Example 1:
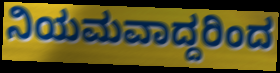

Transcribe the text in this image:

ನಿಯಮವಾದ್ದರಿಂದ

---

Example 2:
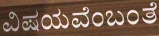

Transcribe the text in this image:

ವಿಷಯವೆಂಬಂತೆ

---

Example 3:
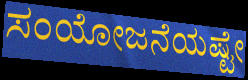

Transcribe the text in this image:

ಸಂಯೋಜನೆಯಷ್ಟೇ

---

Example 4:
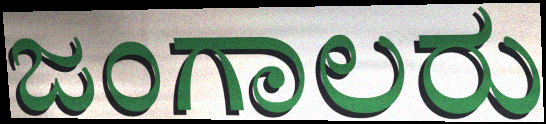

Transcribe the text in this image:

ಜಂಗಾಲರು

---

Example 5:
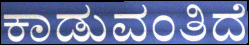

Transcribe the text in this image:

ಕಾಡುವಂತಿದೆ